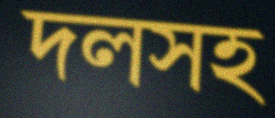
দলসহ